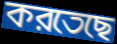
করতেছে